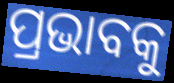
ପ୍ରଭାବକୁ